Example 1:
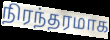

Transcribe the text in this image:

நிரந்தரமாக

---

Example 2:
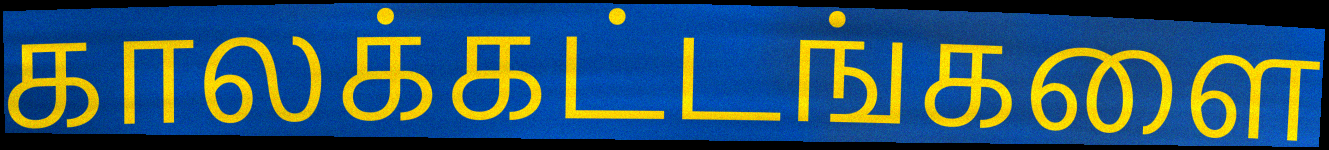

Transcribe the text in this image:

காலக்கட்டங்களை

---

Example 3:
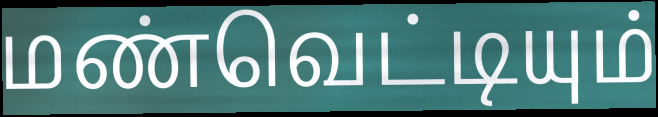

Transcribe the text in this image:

மண்வெட்டியும்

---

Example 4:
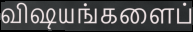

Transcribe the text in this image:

விஷயங்களைப்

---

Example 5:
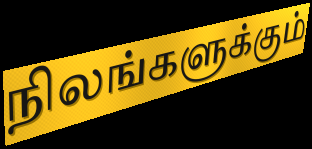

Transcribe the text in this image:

நிலங்களுக்கும்